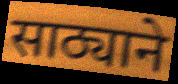
साठ्याने